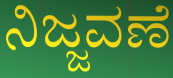
ನಿಜ್ಜವಣೆ